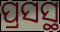
ପ୍ରସସ୍ଥ